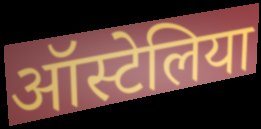
ऑस्टेलिया